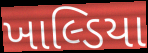
ખાલ્ડિયા